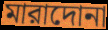
মারাদোনা